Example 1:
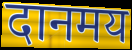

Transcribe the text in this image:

दानमय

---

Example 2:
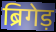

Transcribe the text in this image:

ब्रिगेड़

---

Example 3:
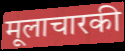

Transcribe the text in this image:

मूलाचारकी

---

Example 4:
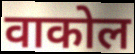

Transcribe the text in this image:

वाकोल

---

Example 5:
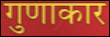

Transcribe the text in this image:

गुणाकार